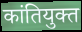
कांतियुक्त